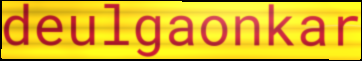
deulgaonkar